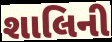
શાલિની